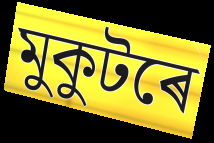
মুকুটৰে